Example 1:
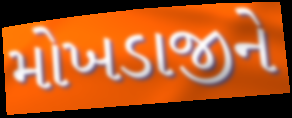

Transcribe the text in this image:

મોખડાજીને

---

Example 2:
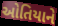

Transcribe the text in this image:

ઓતિયાને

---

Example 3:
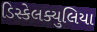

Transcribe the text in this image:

ડિસ્કેલક્યુલિયા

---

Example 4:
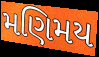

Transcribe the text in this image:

મણિમય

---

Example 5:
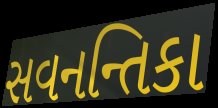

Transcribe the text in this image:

સવનન્તિકા